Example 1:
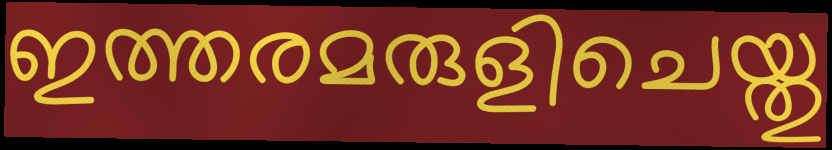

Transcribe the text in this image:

ഇത്തരമരുളിചെയ്തു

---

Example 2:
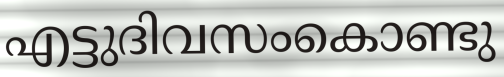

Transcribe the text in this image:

എട്ടുദിവസംകൊണ്ടു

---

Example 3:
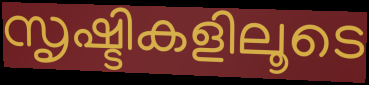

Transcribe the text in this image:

സൃഷ്ടികളിലൂടെ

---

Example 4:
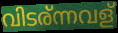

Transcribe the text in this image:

വിടര്ന്നവള്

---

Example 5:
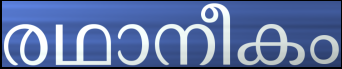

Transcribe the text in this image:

രഥാനീകം